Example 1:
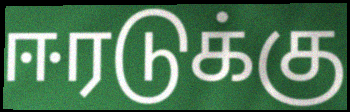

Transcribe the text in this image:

ஈரடுக்கு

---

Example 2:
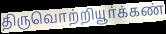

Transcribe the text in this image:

திருவொற்றியூர்க்கண்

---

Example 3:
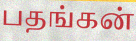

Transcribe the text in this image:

பதங்கன்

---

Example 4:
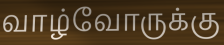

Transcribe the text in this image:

வாழ்வோருக்கு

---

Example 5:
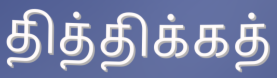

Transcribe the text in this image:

தித்திக்கத்